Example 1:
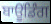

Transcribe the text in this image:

ਬਾਊਂਡਿੰਗ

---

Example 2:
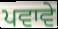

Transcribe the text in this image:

ਪਵਾਵੇ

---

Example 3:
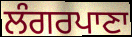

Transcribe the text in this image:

ਲੰਗਰਪਾਣਾ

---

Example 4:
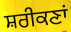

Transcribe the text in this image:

ਸ਼ਰੀਕਣਾਂ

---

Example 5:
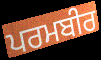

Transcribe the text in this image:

ਪਰਮਬੀਰ